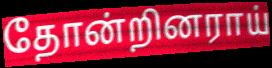
தோன்றினராய்